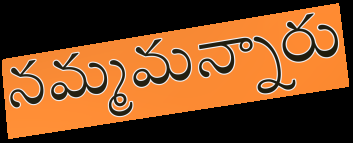
నమ్మమన్నారు